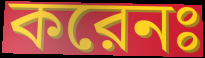
করেনঃ